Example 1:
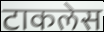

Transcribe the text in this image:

टाकलेस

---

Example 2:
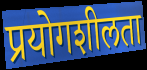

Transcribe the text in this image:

प्रयोगशीलता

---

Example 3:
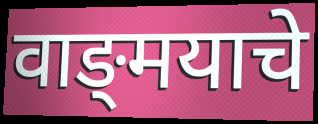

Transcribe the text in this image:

वाङ्‍मयाचे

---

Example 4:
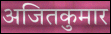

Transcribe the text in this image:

अजितकुमार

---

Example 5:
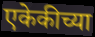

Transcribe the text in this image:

एकेकीच्या